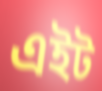
এইট